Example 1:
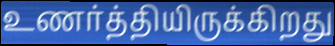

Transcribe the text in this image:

உணர்த்தியிருக்கிறது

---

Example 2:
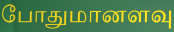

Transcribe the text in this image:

போதுமானளவு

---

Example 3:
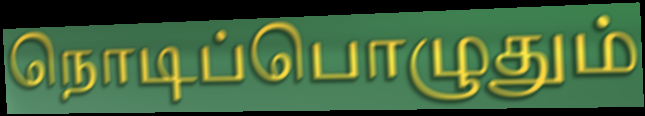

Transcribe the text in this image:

நொடிப்பொழுதும்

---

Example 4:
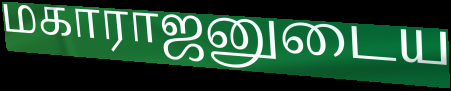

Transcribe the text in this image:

மகாராஜனுடைய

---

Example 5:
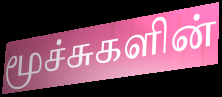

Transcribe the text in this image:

மூச்சுகளின்